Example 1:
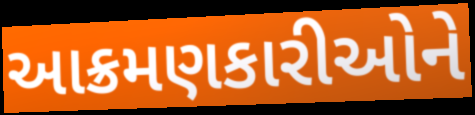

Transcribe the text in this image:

આક્રમણકારીઓને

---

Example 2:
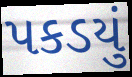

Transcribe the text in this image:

પકડયું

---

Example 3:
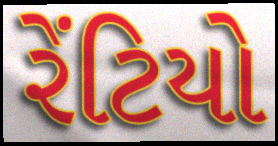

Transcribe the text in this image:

રેંટિયો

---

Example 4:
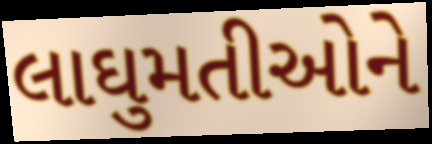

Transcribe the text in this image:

લાઘુમતીઓને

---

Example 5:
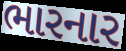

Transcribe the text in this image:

ભારનાર